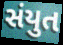
સંયુત